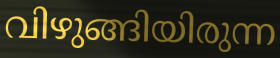
വിഴുങ്ങിയിരുന്ന